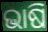
ଭାଷି